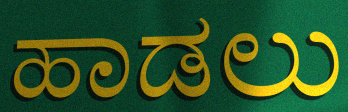
ಹಾಡಲು